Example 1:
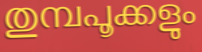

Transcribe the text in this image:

തുമ്പപൂക്കളും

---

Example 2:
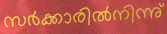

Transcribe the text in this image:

സർക്കാരിൽനിന്നു്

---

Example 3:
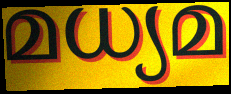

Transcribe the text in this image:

മധ്യമ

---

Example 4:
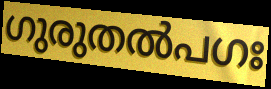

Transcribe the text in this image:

ഗുരുതൽപഗഃ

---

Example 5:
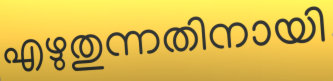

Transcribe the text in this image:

എഴുതുന്നതിനായി